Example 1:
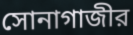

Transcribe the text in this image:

সোনাগাজীর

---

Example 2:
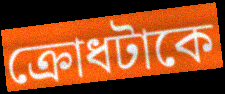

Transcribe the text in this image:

ক্রোধটাকে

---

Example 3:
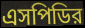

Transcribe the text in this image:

এসপিডির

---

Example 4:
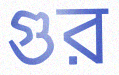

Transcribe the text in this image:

গুর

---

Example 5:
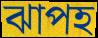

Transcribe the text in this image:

ঝাপহ